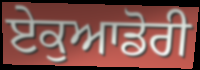
ਏਕੁਆਡੋਰੀ